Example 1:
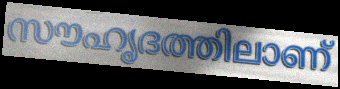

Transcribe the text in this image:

സൗഹൃദത്തിലാണ്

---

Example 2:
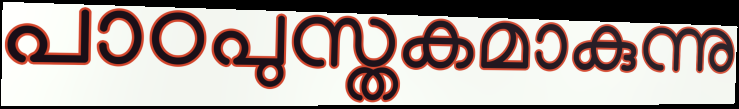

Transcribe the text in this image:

പാഠപുസ്തകമാകുന്നു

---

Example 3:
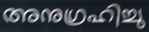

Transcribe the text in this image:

അനുഗ്രഹിച്ചു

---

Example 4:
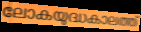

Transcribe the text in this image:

ലോകയുദ്ധകാലത്ത്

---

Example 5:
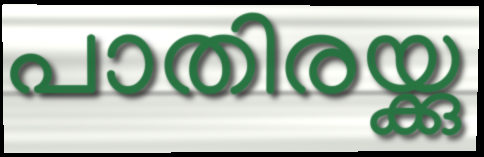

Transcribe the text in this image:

പാതിരയ്ക്കു